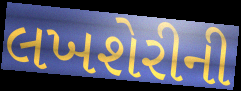
લખશેરીની